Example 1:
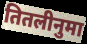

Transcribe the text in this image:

तितलीनुमा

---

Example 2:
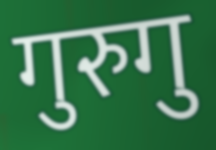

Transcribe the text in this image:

गुरुगु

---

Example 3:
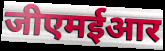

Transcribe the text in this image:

जीएमईआर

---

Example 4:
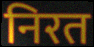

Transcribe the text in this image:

निरत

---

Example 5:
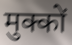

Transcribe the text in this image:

मुक्कों